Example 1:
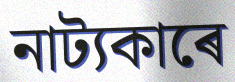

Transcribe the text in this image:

নাট্যকাৰে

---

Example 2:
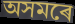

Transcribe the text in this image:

অসমৰে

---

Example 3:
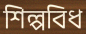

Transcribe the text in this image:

শিল্পবিধ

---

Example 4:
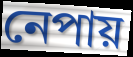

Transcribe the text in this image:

নেপায়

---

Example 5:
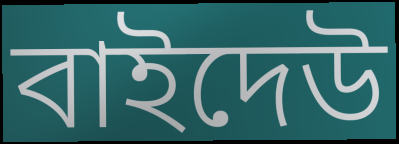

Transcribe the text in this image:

বাইদেউ